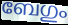
ബേഗും